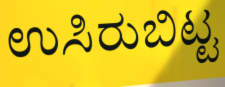
ಉಸಿರುಬಿಟ್ಟ